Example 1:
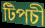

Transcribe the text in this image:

টিপচী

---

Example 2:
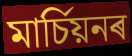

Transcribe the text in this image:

মাৰ্চিয়নৰ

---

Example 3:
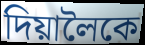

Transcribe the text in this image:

দিয়ালৈকে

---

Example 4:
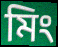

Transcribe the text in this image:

মিং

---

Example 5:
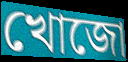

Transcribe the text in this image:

খোজো